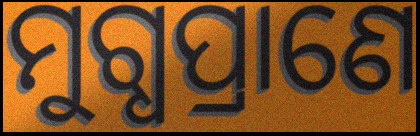
ମୁଗ୍ଧପ୍ରାଣେ